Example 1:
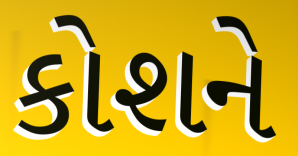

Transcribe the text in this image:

કોશને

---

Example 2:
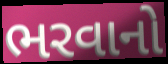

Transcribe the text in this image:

ભરવાનો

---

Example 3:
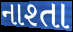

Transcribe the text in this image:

નાશ્તા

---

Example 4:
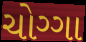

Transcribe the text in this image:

ચોગ્ગા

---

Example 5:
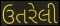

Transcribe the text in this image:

ઉતરેલી